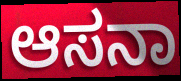
ಆಸನಾ